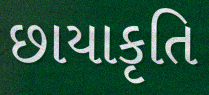
છાયાકૃતિ